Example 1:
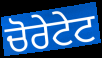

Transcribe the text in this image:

ਚੋਰੇਟੇਟ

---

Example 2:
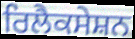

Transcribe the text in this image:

ਰਿਲੈਕਸੇਸ਼ਨ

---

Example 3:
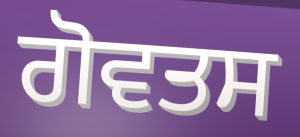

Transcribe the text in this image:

ਗੋਵਤਸ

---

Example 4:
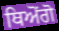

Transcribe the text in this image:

ਥਿਅੋਂਗੋ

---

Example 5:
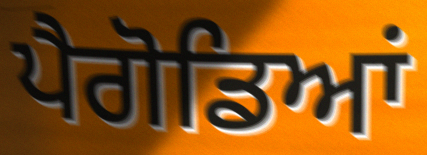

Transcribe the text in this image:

ਪੈਗੋਡਿਆਂ